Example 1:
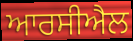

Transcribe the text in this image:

ਆਰਸੀਐਲ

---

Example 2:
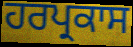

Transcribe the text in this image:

ਹਰਪ੍ਰਕਾਸ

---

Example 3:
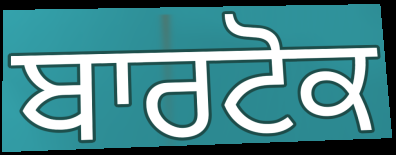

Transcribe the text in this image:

ਬਾਰਟੋਕ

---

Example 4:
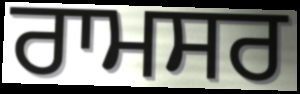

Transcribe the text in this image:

ਰਾਮਸਰ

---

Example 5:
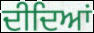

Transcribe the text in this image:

ਦੀਦਿਆਂ